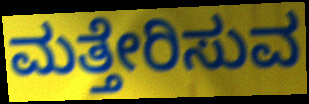
ಮತ್ತೇರಿಸುವ